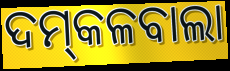
ଦମ୍‍କଳବାଲା